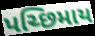
પચ્છિમાય